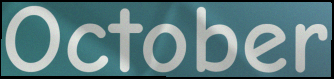
October